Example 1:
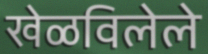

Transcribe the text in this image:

खेळविलेले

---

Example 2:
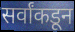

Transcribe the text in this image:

सर्वांकडून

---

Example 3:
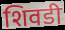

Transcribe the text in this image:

शिवडी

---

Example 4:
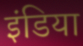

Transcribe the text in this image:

इंडिया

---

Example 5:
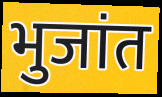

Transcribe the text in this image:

भुजांत